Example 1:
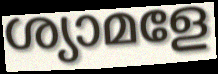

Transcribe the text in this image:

ശ്യാമളേ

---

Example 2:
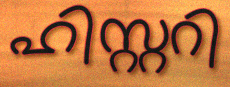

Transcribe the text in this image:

ഹിസ്റ്ററി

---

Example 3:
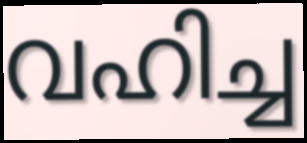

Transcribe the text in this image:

വഹിച്ച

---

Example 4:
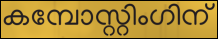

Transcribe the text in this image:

കമ്പോസ്റ്റിംഗിന്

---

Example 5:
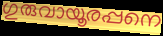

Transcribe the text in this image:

ഗുരുവായൂരപ്പനെ